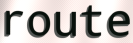
route